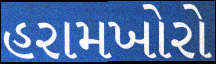
હરામખોરો